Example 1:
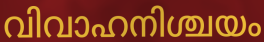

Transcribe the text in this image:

വിവാഹനിശ്ചയം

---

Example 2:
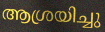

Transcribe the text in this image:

ആശ്രയിച്ചു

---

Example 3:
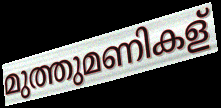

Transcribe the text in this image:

മുത്തുമണികള്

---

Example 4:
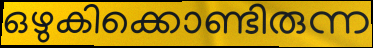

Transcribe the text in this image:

ഒഴുകിക്കൊണ്ടിരുന്ന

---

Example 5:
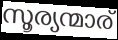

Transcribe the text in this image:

സൂര്യന്മാര്